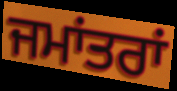
ਜਮਾਂਤਰਾਂ